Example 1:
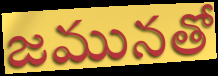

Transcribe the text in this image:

జమునతో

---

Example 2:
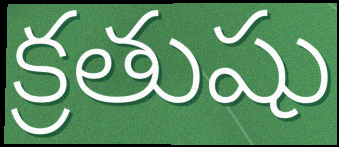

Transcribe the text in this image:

క్రతుషు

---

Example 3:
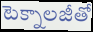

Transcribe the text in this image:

టెక్నాలజీతో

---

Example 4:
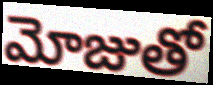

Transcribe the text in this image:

మోజుతో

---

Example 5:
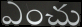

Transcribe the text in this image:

ఎంచు